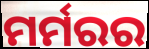
ମର୍ମରର